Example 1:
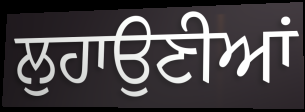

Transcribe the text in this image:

ਲੁਹਾਉਣੀਆਂ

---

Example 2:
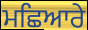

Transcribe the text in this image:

ਮਛਿਆਰੇ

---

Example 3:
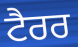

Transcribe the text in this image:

ਟੈਰਰ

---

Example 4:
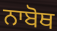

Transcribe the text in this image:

ਨਾਬੋਥ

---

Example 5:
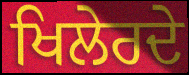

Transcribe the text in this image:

ਖਿਲੇਰਦੇ